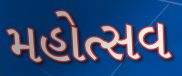
મહોત્સવ